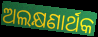
ଅଲକ୍ଷଣାର୍ଥକ